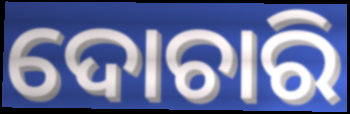
ଦୋଚାରି